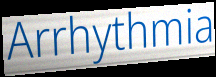
Arrhythmia